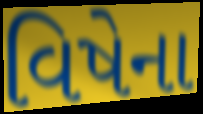
વિષેના